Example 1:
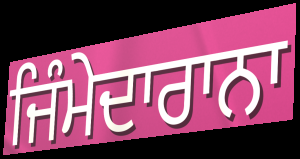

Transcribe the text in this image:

ਜਿੰਮੇਦਾਰਾਨਾ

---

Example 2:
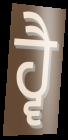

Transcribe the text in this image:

ਹ੍ਵੈ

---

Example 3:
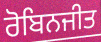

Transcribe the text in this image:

ਰੋਬਿਨਜੀਤ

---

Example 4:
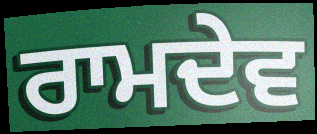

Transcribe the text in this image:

ਰਾਮਦੇਵ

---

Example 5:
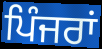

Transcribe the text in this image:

ਪਿੰਜਰਾਂ